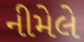
નીમેલે